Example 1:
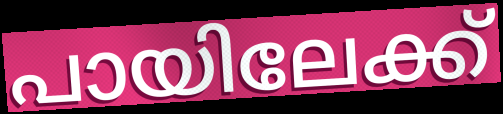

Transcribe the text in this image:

പായിലേക്ക്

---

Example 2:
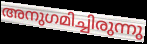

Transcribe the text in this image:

അനുഗമിച്ചിരുന്നു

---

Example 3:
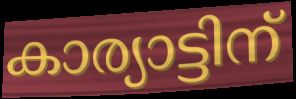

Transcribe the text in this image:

കാര്യാട്ടിന്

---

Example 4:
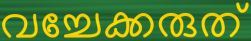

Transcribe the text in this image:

വച്ചേക്കരുത്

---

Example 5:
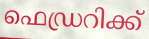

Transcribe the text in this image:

ഫെഡ്രറിക്ക്